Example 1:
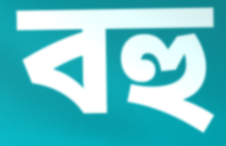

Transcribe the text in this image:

বহু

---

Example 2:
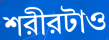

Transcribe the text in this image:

শরীরটাও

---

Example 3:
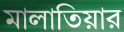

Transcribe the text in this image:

মালাতিয়ার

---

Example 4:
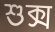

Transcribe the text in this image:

শুক্স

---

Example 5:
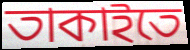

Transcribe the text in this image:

তাকাইতে